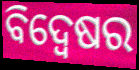
ବିଦ୍ୱେଷର